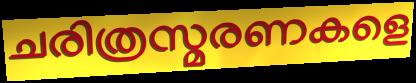
ചരിത്രസ്മരണകളെ